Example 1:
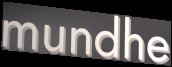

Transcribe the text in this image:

mundhe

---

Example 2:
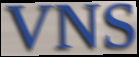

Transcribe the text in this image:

VNS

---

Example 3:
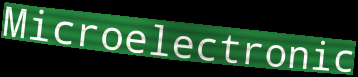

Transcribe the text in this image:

Microelectronic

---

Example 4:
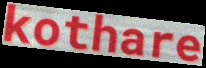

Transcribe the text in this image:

kothare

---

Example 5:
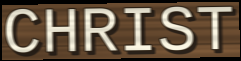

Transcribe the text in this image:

CHRIST